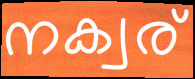
നക്വര്